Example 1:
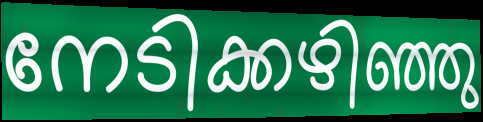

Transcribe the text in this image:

നേടിക്കഴിഞ്ഞു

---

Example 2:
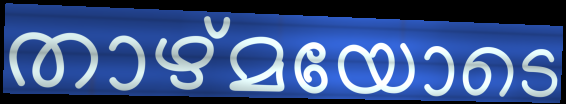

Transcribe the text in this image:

താഴ്മയോടെ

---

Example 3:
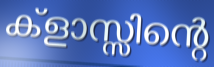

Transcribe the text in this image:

ക്ളാസ്സിന്റെ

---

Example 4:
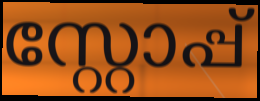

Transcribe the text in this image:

സ്റ്റോപ്പ്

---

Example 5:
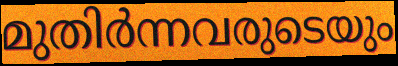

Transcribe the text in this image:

മുതിർന്നവരുടെയും